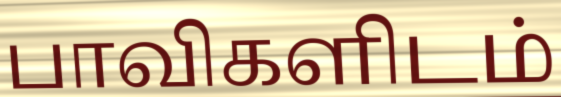
பாவிகளிடம்